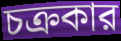
চক্রকার